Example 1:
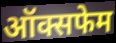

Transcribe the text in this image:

ऑक्सफेम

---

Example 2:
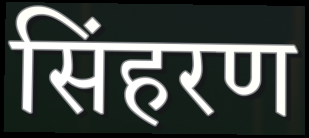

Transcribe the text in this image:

सिंहरण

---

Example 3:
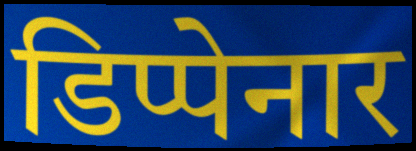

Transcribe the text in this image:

डिप्पेनार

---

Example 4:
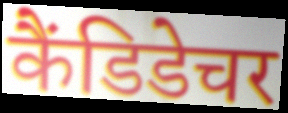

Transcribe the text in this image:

कैंडिडेचर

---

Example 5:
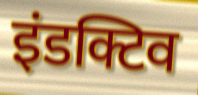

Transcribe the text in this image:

इंडक्टिव